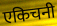
एकिचनी